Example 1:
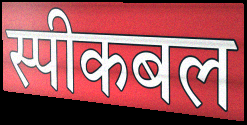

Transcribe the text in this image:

स्पीकबल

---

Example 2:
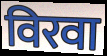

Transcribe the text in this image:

विरवा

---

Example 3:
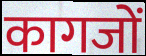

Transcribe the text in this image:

कागजों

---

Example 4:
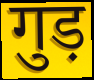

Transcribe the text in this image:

गुड़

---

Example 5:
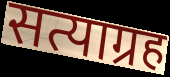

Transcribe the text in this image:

सत्याग्रह